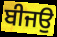
ਬੀਜਉ